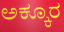
ಅಕ್ಕೂರ